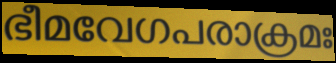
ഭീമവേഗപരാക്രമഃ